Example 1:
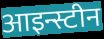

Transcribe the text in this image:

आइन्स्टीन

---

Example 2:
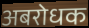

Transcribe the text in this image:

अबरोधक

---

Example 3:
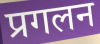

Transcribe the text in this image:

प्रगलन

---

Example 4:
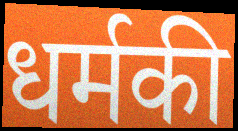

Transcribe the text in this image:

धर्मकी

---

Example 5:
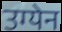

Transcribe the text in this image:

उग्येन